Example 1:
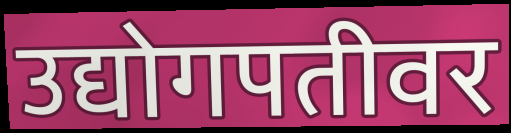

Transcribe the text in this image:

उद्योगपतीवर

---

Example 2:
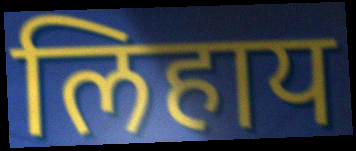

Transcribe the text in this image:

लिहाय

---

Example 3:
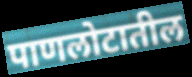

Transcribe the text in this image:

पाणलोटातील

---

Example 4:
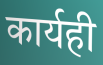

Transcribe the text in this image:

कार्यही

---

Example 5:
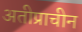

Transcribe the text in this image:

अतीप्राचीन